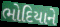
ભોદિયાને